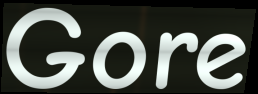
Gore